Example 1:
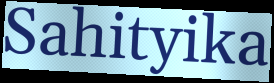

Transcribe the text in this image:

Sahityika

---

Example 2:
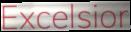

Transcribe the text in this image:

Excelsior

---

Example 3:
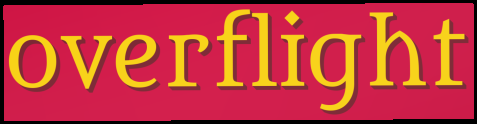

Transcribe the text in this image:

overflight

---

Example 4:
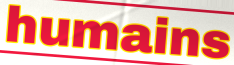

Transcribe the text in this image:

humains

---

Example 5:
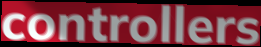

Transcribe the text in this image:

controllers